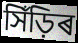
সিঁড়িৰ